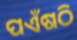
ପଏଁଷଠି